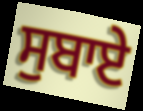
ਸੁਬਾਏ